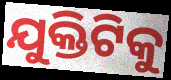
ଯୁକ୍ତିଟିକୁ